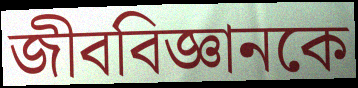
জীববিজ্ঞানকে